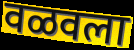
वळवला